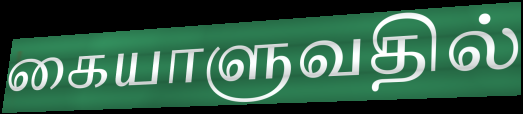
கையாளுவதில்